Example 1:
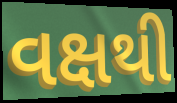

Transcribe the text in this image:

વક્ષથી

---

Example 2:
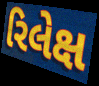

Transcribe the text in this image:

રિલેક્ષ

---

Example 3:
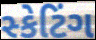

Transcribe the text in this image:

સ્કેટિંગ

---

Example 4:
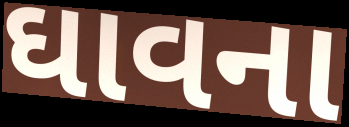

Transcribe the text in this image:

ઘાવના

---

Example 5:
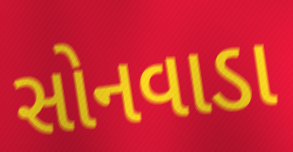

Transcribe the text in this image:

સોનવાડા